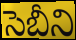
సెబీని